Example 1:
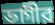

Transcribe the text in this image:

ভাগীর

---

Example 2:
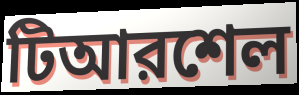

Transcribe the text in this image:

টিআরশেল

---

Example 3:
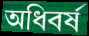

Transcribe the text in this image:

অধিবর্ষ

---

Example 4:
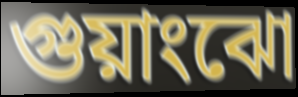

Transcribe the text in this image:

গুয়াংঝো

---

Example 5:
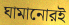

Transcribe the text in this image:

ঘামানোরই